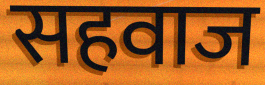
सहवाज